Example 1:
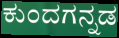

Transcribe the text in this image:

ಕುಂದಗನ್ನಡ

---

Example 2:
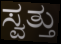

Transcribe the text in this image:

ಸ್ವತ್ತು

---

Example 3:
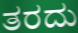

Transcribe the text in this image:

ತರದು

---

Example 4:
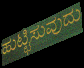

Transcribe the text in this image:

ಹುಟ್ಟಿಸುವುದು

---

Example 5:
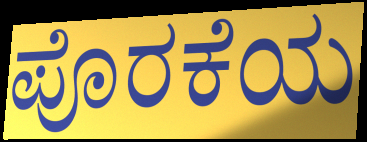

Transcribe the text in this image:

ಪೊರಕೆಯ